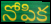
నోపిక